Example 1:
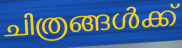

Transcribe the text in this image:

ചിത്രങ്ങൾക്ക്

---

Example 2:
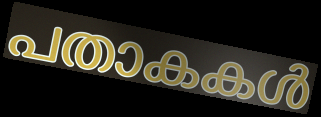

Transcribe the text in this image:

പതാകകൾ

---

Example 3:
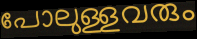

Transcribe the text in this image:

പോലുള്ളവരും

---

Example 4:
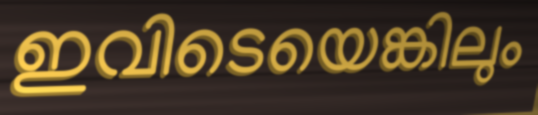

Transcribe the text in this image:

ഇവിടെയെങ്കിലും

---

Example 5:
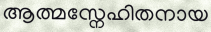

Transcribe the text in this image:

ആത്മസ്നേഹിതനായ